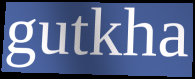
gutkha